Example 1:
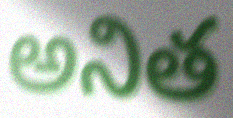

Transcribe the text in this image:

అనిత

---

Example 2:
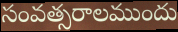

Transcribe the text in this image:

సంవత్సరాలముందు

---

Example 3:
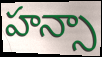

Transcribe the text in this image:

హన్సా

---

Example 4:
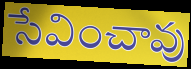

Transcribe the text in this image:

సేవించావు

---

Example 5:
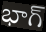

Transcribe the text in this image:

భాగ్